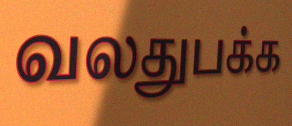
வலதுபக்க